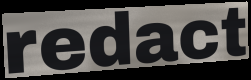
redact